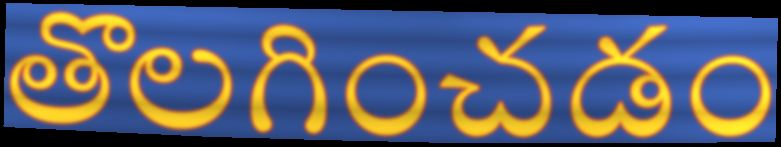
తొలగించడం